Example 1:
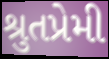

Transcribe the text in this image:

શ્રુતપ્રેમી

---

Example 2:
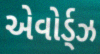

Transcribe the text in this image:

એવોર્ડ્ઝ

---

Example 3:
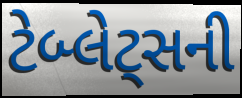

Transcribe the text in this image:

ટેબ્લેટ્સની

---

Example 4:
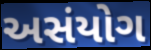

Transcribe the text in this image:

અસંયોગ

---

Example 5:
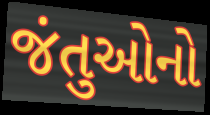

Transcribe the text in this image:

જંતુઓનો